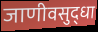
जाणीवसुद्धा